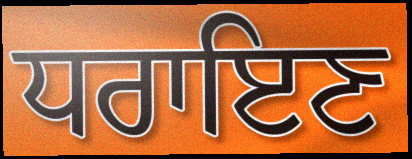
ਧਰਾਇਣ